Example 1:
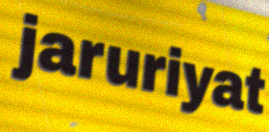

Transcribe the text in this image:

jaruriyat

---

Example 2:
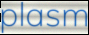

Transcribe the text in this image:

plasm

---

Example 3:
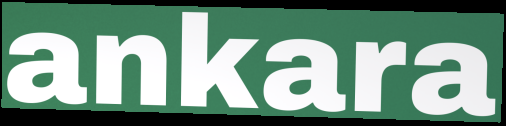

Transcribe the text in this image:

ankara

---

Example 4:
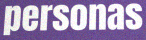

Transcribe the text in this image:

personas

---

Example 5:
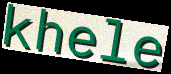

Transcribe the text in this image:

khele